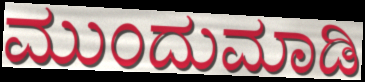
ಮುಂದುಮಾಡಿ